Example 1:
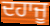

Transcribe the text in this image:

ਦਹਾਜੂ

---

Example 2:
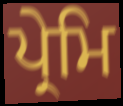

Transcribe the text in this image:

ਪ੍ਰੇਮਿ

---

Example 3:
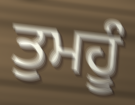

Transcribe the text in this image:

ਤੁਮਹੂੰ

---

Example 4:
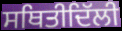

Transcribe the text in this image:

ਸਥਿਤੀਦਿੱਲੀ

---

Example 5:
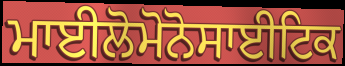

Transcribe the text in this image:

ਮਾਈਲੋਮੋਨੋਸਾਈਟਿਕ